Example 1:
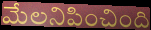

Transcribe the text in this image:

మేలనిపించింది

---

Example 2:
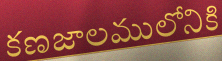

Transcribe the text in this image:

కణజాలములోనికి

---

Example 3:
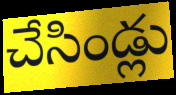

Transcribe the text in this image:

చేసిండ్లు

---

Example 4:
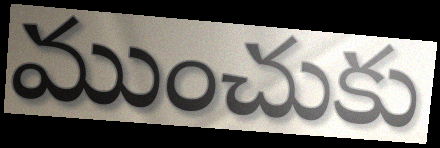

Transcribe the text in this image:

ముంచుకు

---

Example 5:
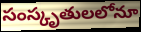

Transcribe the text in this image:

సంస్కృతులలోనూ